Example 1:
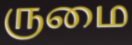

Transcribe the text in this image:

ருமை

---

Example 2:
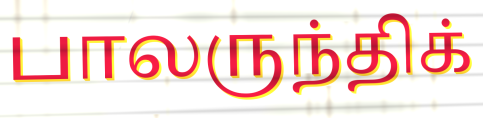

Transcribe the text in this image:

பாலருந்திக்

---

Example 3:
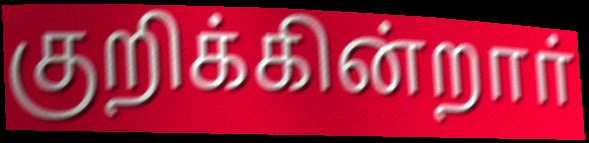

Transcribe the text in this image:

குறிக்கின்றார்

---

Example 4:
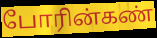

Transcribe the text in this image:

போரின்கண்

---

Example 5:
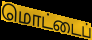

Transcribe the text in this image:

மொட்டைப்